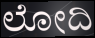
ಲೋದಿ